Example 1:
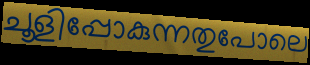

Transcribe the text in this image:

ചൂളിപ്പോകുന്നതുപോലെ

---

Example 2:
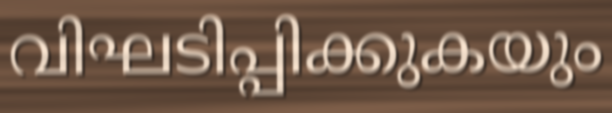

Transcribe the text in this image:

വിഘടിപ്പിക്കുകയും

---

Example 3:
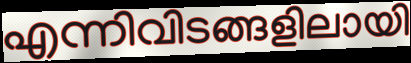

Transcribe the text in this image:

എന്നിവിടങ്ങളിലായി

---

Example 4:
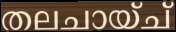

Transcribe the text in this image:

തലചായ്ച്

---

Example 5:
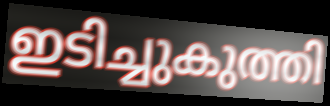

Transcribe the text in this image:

ഇടിച്ചുകുത്തി